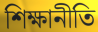
শিক্ষানীতি